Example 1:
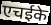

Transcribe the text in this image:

एचईके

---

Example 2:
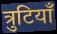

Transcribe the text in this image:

त्रुटियाँ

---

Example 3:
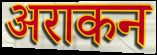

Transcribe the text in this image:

अराकन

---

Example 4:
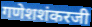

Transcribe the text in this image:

गणेशशंकरजी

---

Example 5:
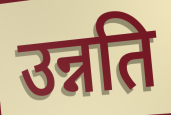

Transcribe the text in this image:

उन्नति